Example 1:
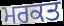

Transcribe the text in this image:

ਮਰਕਤ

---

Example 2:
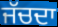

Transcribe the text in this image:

ਜੱਚਦਾ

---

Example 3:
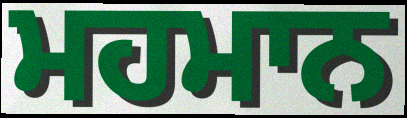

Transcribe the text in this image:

ਮਹਮਾਨ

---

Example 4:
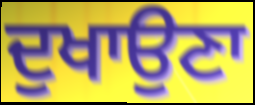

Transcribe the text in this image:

ਦੁਖਾਉਣਾ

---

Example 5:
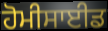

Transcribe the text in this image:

ਹੋਮੀਸਾਈਡ